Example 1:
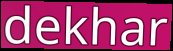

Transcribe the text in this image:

dekhar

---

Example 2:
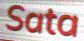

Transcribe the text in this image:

Sata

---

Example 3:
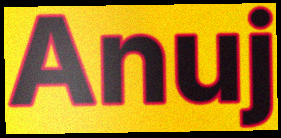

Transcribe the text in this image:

Anuj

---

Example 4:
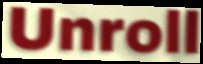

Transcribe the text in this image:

Unroll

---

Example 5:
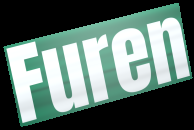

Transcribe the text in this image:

Furen